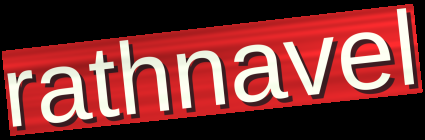
rathnavel